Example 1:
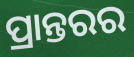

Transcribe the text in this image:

ପ୍ରାନ୍ତରର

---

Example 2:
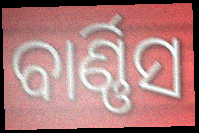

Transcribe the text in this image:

ବାର୍ଣ୍ଣିସ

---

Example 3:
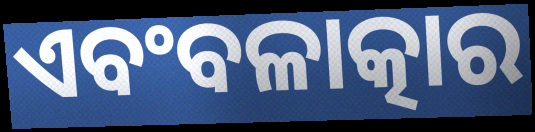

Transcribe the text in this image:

ଏବଂବଳାତ୍କାର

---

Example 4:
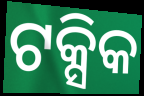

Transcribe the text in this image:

ଟକ୍ସିକ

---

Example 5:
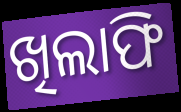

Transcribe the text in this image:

ଖିଲାଫି